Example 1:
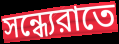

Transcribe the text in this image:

সন্ধ্যেরাতে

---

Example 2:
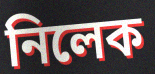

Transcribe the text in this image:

নিলেক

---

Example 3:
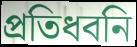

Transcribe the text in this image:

প্রতিধবনি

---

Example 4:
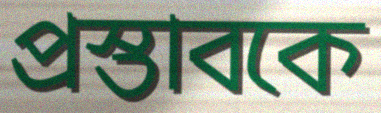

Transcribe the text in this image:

প্রস্তাবকে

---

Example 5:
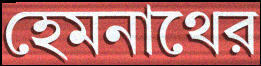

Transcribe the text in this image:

হেমনাথের